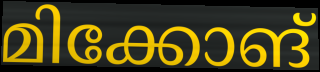
മിക്കോങ്